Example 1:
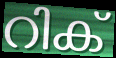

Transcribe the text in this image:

റിക്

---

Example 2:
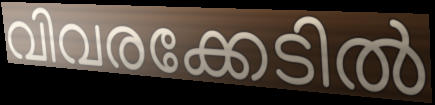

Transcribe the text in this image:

വിവരക്കേടിൽ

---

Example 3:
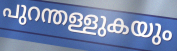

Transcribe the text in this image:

പുറന്തള്ളുകയും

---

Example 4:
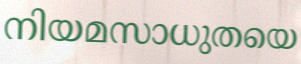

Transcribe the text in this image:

നിയമസാധുതയെ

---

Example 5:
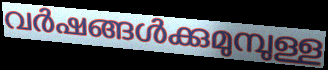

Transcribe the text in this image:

വർഷങ്ങൾക്കുമുമ്പുള്ള